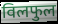
विलफुल